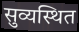
सुव्यस्थित